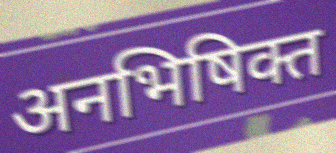
अनभिषिक्त